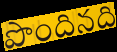
పొందినది